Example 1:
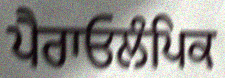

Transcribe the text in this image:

ਪੈਰਾਓਲੰਪਿਕ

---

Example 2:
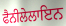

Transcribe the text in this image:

ਫੈਨੀਲੇਲਾਇਨ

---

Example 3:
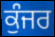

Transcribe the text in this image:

ਕੁੰਜਰ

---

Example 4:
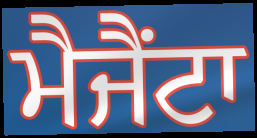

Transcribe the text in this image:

ਮੈਜੈਂਟਾ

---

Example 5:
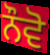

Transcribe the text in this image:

ਨੌਵੋ